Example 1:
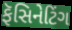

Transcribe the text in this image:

ફૅસિનેટિંગ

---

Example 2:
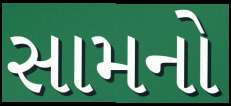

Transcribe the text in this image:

સામનો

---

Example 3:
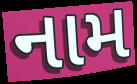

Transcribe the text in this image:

નામ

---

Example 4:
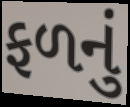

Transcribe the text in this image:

ફળનું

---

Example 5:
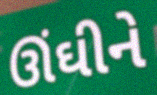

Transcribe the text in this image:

ઊંઘીને